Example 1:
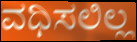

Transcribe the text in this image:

ವಧಿಸಲಿಲ್ಲ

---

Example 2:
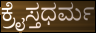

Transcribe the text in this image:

ಕ್ರೈಸ್ತಧರ್ಮ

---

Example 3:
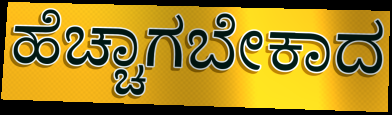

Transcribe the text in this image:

ಹೆಚ್ಚಾಗಬೇಕಾದ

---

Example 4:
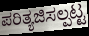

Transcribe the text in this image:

ಪರಿತ್ಯಜಿಸಲ್ಪಟ್ಟ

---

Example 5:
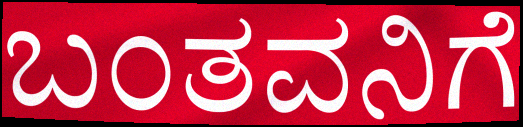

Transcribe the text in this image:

ಬಂತವನಿಗೆ